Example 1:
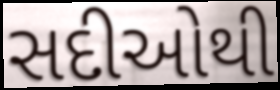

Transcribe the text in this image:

સદીઓથી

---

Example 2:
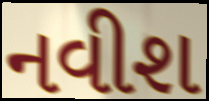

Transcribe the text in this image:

નવીશ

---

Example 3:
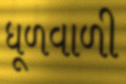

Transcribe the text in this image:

ધૂળવાળી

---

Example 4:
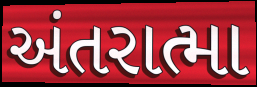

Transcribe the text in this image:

અંતરાત્મા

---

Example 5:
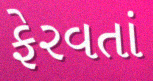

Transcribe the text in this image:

ફેરવતાં